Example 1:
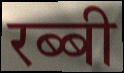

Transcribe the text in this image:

रब्बी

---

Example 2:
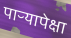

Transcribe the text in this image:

पाऱ्यापेक्षा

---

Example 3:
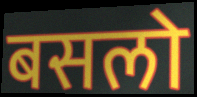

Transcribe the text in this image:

बसलो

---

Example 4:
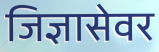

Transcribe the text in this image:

जिज्ञासेवर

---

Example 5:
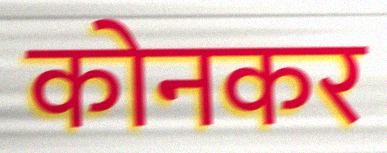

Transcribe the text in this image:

कोनकर